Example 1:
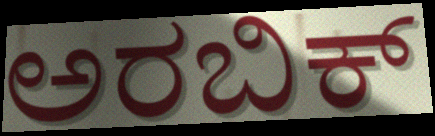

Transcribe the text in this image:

ಅರಬಿಕ್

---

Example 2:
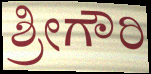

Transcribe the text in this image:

ಶ್ರೀಗೌರಿ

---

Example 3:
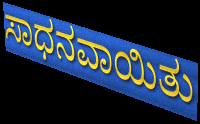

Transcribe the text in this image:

ಸಾಧನವಾಯಿತು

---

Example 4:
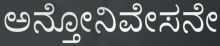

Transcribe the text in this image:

ಅನ್ತೋನಿವೇಸನೇ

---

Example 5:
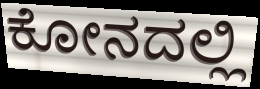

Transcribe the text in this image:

ಕೋನದಲ್ಲಿ